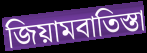
জিয়ামবাতিস্তা